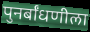
पुनर्बांधणीला